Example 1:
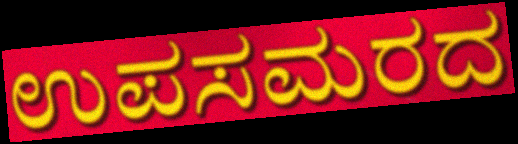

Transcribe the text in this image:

ಉಪಸಮರದ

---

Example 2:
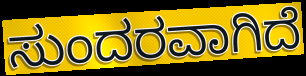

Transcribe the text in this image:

ಸುಂದರವಾಗಿದೆ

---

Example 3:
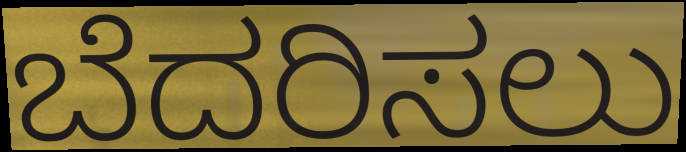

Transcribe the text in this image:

ಬೆದರಿಸಲು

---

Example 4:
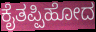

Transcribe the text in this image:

ಕೈತಪ್ಪಿಹೋದ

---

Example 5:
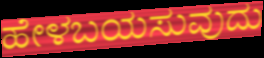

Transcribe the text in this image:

ಹೇಳಬಯಸುವುದು